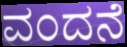
ವಂದನೆ